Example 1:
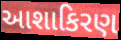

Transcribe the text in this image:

આશાકિરણ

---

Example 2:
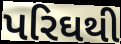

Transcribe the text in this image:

પરિઘથી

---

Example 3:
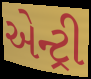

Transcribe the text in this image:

એન્ટ્રી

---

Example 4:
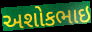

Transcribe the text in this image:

અશોકભાઇ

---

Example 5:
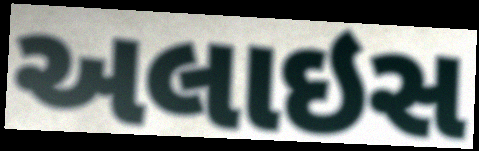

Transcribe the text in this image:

અલાઇસ